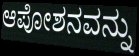
ಆಪೋಶನವನ್ನು